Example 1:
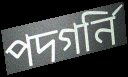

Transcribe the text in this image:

পদগর্নি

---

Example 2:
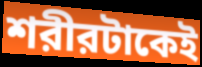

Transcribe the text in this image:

শরীরটাকেই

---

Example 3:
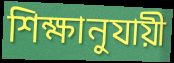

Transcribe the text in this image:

শিক্ষানুযায়ী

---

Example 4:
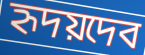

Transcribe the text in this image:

হৃদয়দেব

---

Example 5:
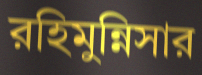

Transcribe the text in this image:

রহিমুন্নিসার